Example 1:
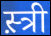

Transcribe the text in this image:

स़्त्री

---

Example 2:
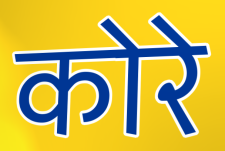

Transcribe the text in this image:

कोरे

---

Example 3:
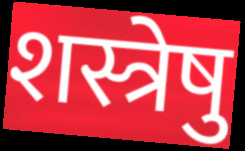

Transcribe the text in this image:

शस्त्रेषु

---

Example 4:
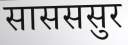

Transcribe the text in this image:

सासससुर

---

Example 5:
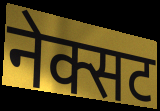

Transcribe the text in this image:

नेक्सट